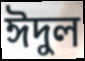
ঈদুল